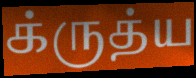
க்ருத்ய